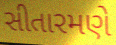
સીતારમણે